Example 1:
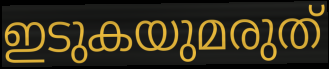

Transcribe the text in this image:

ഇടുകയുമരുത്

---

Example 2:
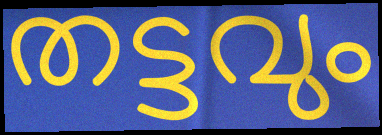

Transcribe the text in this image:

തട്ടവും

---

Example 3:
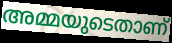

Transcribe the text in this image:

അമ്മയുടെതാണ്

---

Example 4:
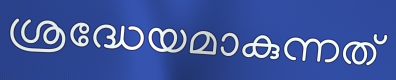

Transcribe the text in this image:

ശ്രദ്ധേയമാകുന്നത്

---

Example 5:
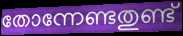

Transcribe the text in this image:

തോന്നേണ്ടതുണ്ട്